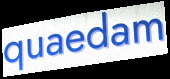
quaedam